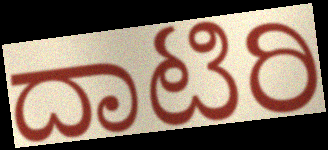
ದಾಟಿರಿ